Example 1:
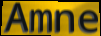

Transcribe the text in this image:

Amne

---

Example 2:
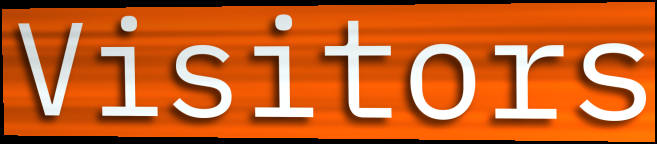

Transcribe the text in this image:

Visitors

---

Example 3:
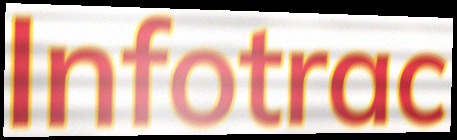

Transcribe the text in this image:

Infotrac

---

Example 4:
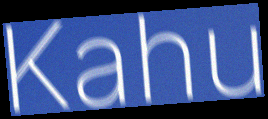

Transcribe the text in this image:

Kahu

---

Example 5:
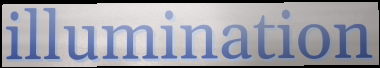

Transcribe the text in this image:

illumination